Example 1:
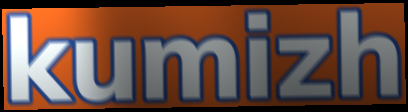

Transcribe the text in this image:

kumizh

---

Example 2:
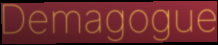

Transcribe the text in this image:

Demagogue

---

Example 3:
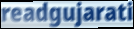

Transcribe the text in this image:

readgujarati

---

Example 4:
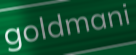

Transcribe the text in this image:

goldmani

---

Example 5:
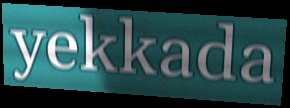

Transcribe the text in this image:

yekkada